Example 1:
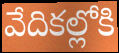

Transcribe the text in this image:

వేదికల్లోకి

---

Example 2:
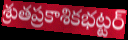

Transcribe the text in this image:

శ్రుతప్రకాశికభట్టర్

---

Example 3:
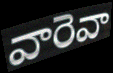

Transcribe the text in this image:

వారెవా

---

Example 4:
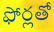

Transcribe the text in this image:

ఫోర్లతో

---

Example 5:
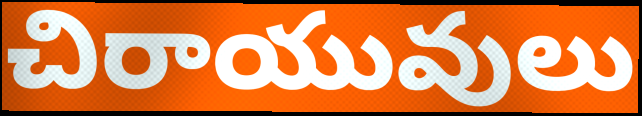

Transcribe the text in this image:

చిరాయువులు